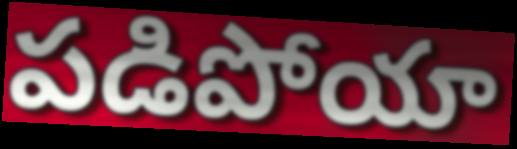
పడిపోయా